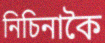
নিচিনাকৈ